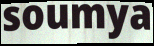
soumya